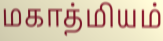
மகாத்மியம்